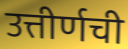
उत्तीर्णची